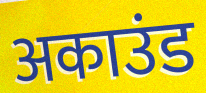
अकाउंड